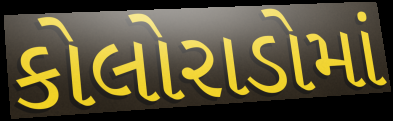
કોલોરાડોમાં